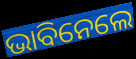
ଭାବିନେଲେ